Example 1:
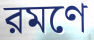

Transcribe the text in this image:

রমণে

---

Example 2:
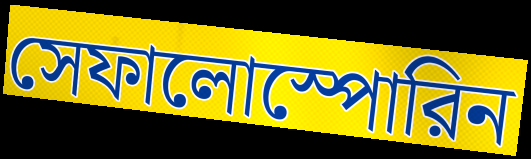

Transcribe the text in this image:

সেফালোস্পোরিন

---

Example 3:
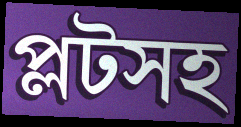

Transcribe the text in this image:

প্লটসহ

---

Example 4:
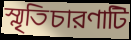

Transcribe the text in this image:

স্মৃতিচারণাটি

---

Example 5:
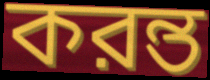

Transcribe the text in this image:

করন্ত